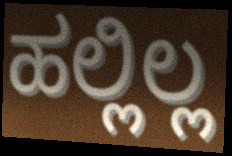
ಹಲ್ಲಿಲ್ಲ